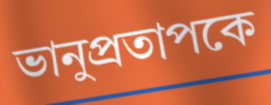
ভানুপ্রতাপকে